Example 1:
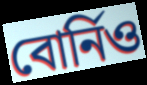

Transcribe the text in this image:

বোৰ্নিও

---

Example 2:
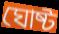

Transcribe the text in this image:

ঘোষ্ট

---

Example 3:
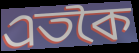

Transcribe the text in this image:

এতকৈ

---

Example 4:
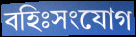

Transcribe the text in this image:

বহিঃসংযোগ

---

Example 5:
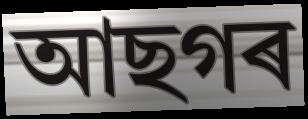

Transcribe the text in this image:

আছগৰ